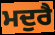
ਮਦੁਰੈ